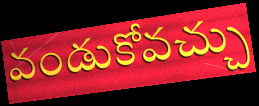
వండుకోవచ్చు